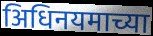
अिधिनयमाच्या